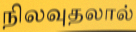
நிலவுதலால்